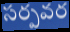
సర్పవర